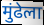
मुंढेला